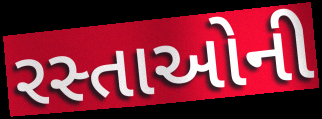
રસ્તાઓની